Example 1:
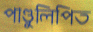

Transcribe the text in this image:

পাণ্ডুলিপিত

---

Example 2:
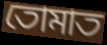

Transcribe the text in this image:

তোমাত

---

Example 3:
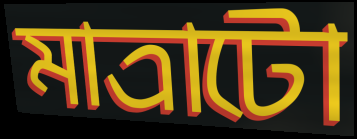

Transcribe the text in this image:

মাত্ৰাটো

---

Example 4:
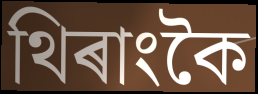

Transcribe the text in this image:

থিৰাংকৈ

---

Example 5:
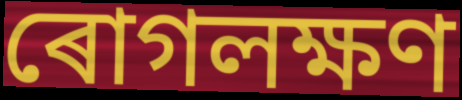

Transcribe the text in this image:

ৰোগলক্ষণ